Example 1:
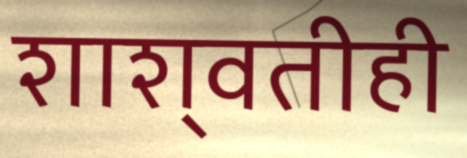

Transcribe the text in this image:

शाश्वतीही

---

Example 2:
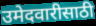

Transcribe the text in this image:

उमेदवारीसाठी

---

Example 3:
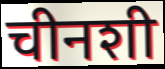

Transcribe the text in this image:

चीनशी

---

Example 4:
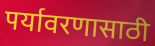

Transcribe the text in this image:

पर्यावरणासाठी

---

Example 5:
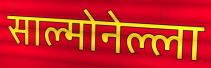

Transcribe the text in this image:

साल्मोनेल्ला